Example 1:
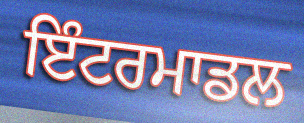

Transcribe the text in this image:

ਇੰਟਰਮਾਡਲ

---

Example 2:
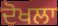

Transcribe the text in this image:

ਦੋਖਲਾ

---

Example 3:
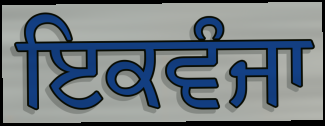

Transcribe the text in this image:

ਇਕਵੰਜਾ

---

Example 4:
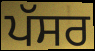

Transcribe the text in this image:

ਪੱਸਰ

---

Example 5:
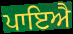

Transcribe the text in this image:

ਪਾਇਐ